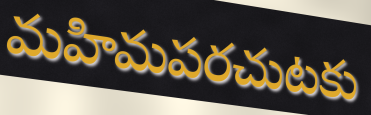
మహిమపరచుటకు